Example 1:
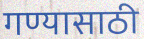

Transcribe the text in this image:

गण्यासाठी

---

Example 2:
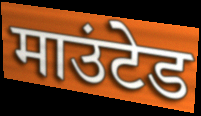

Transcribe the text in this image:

माउंटेड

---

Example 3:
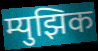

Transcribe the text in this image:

म्युझिक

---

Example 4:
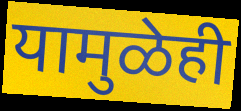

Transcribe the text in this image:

यामुळेही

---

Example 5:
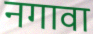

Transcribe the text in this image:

नगावा